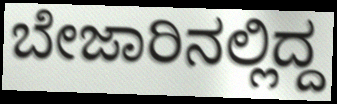
ಬೇಜಾರಿನಲ್ಲಿದ್ದ